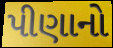
પીણાનો